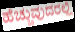
ಹೆಚ್ಚುವುದರಲ್ಲಿ